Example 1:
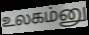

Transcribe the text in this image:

உலகம்னு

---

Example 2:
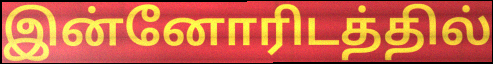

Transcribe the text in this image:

இன்னோரிடத்தில்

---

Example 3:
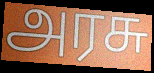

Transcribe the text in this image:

அரசு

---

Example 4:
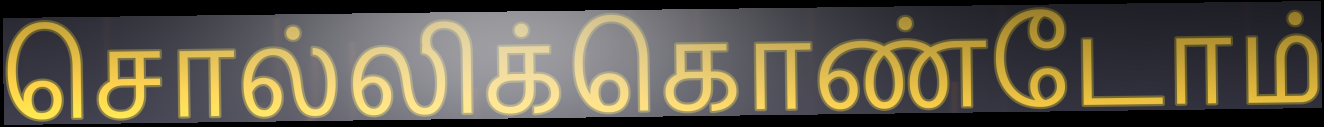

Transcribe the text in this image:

சொல்லிக்கொண்டோம்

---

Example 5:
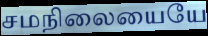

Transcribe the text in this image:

சமநிலையையே